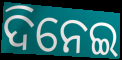
ଦିନେଇ